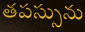
తపస్సును